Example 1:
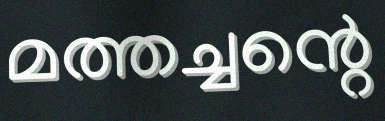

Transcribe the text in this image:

മത്തച്ചന്റെ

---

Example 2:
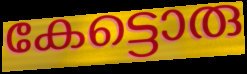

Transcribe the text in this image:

കേട്ടൊരു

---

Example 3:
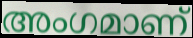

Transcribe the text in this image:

അംഗമാണ്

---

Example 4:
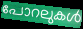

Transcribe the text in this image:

പോറലുകൾ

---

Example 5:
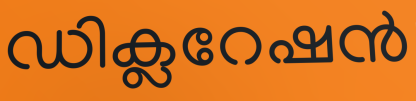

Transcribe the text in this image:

ഡിക്ലറേഷൻ